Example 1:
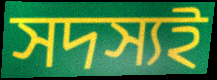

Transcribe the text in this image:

সদস্যই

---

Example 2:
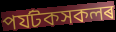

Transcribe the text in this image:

পৰ্যটকসকলৰ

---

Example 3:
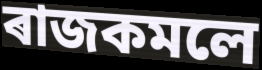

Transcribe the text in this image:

ৰাজকমলে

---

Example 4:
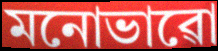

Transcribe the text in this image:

মনোভাৱো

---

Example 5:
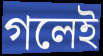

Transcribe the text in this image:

গলেই